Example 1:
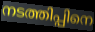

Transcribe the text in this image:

നടത്തിപ്പിനെ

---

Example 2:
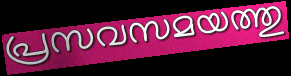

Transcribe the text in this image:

പ്രസവസമയത്തു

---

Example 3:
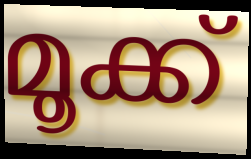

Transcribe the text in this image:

മൂക്ക്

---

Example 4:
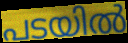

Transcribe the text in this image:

പടയിൽ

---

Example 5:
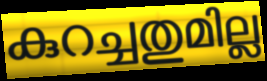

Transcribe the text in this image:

കുറച്ചതുമില്ല